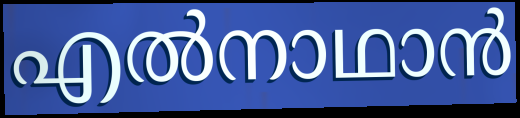
എൽനാഥാൻ